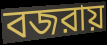
বজরায়